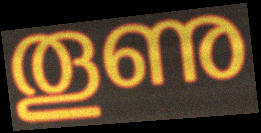
തൂണു